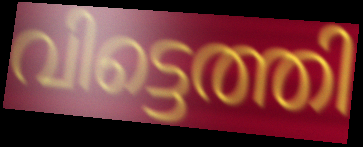
വിട്ടെത്തി